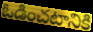
ఓడించటానికి